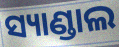
ସ୍ୟାଣ୍ଡାଲ